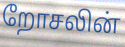
றோசலின்